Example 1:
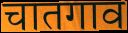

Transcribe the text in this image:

चातगाव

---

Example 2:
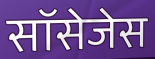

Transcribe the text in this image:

सॉसेजेस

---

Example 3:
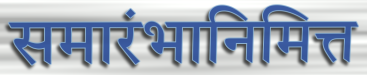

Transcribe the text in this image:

समारंभानिमित्त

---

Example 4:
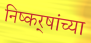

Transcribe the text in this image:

निष्कर्षांच्या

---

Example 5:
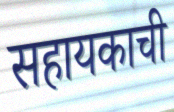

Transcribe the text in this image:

सहायकाची